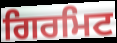
ਗਿਰਮਿਟ